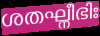
ശതഘ്നീഭിഃ